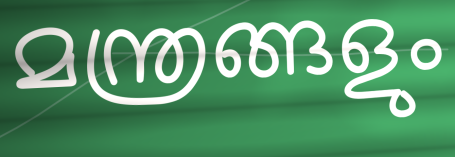
മന്ത്രങ്ങളും